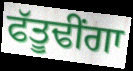
ਫੱਤੂਢੀਂਗਾ